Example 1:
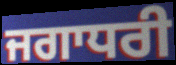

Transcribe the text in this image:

ਜਗਾਧਰੀ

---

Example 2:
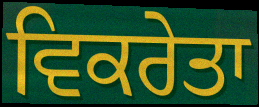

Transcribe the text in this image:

ਵਿਕਰੇਤਾ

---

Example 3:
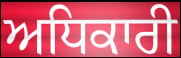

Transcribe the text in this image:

ਅਧਿਕਾਰੀ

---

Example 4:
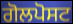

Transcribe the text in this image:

ਗੋਲਪੋਸਟ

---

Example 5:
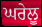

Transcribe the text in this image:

ਘਰੇਲੂ